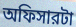
অফিসারটা